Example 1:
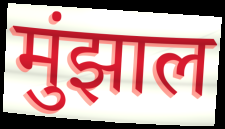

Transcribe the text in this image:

मुंझाल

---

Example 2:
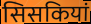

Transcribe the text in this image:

सिसकियां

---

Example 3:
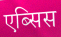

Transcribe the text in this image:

एब्सिस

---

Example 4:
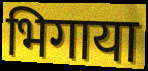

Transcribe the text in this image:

भिगाया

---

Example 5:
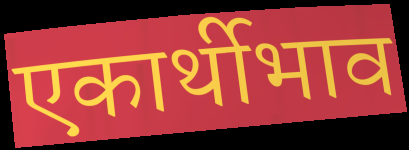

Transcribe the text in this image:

एकार्थीभाव